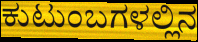
ಕುಟುಂಬಗಳಲ್ಲಿನ